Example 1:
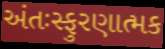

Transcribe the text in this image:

અંતઃસ્ફુરણાત્મક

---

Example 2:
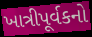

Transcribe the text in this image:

ખાત્રીપૂર્વકનો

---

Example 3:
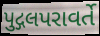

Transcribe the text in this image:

પુદ્ગલપરાવર્તે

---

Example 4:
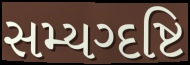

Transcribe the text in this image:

સમ્યગ્દષ્ટિ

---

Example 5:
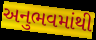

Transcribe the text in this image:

અનુભવમાંથી